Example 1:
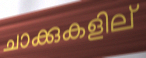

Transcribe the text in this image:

ചാക്കുകളില്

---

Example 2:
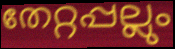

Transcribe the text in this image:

തേറ്റപ്പല്ലും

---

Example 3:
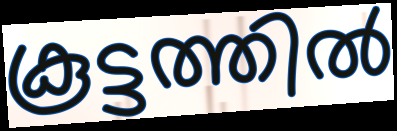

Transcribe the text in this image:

കൂട്ടത്തിൽ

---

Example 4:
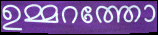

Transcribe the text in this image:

ഉമ്മറത്തോ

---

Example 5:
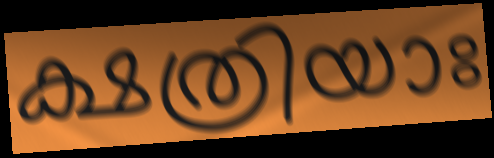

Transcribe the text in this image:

ക്ഷത്രിയാഃ